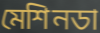
মেশিনডা